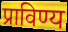
प्राविण्य